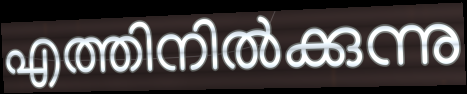
എത്തിനിൽക്കുന്നു